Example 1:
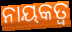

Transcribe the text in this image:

ନାୟକତ୍ୱ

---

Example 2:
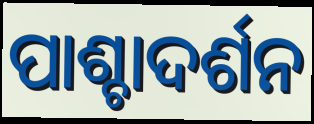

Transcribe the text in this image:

ପାଶ୍ଚାଦର୍ଶନ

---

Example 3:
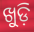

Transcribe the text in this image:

ଖୁଡ଼ି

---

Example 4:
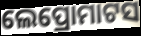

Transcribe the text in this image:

ଲେପ୍ରୋମାଟସ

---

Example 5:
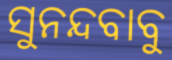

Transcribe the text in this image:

ସୁନନ୍ଦବାବୁ